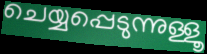
ചെയ്യപ്പെടുന്നുള്ളൂ